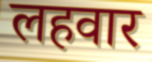
लहवार